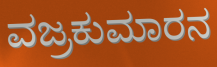
ವಜ್ರಕುಮಾರನ